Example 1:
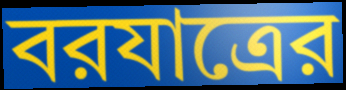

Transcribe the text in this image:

বরযাত্রের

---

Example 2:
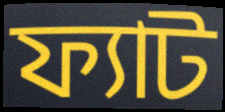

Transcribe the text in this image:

ফ্যাট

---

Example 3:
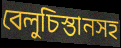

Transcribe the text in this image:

বেলুচিস্তানসহ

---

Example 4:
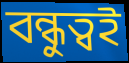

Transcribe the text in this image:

বন্ধুত্বই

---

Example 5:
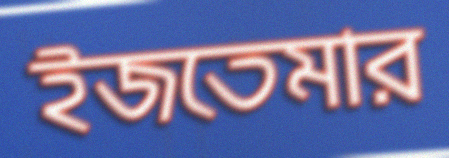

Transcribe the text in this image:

ইজতেমার